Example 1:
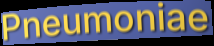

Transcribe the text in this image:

Pneumoniae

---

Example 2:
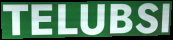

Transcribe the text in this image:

TELUBSI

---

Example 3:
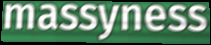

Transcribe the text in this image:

massyness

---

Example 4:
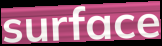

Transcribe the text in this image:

surface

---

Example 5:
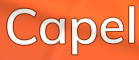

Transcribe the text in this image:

Capel